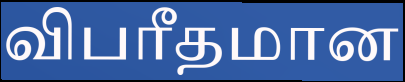
விபரீதமான